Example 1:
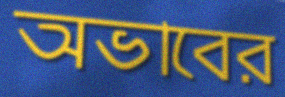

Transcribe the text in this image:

অভাবের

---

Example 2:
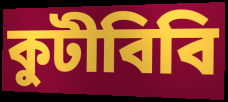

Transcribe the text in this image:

কুটীবিবি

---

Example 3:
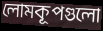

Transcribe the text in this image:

লোমকূপগুলো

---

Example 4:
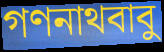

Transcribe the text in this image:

গণনাথবাবু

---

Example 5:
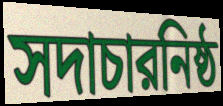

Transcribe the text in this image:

সদাচারনিষ্ঠ